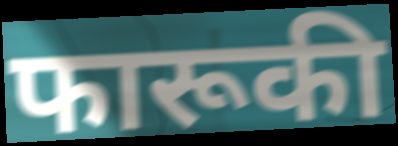
फारूकी